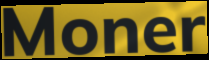
Moner